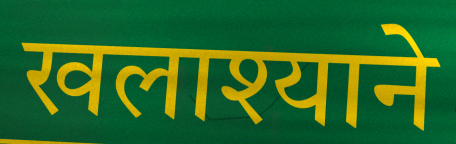
खलाश्याने